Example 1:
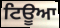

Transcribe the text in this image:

ਟਿਊਆ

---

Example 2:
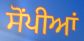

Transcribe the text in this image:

ਸੋਂਪੀਆਂ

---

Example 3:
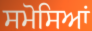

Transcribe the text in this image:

ਸਮੋਸਿਆਂ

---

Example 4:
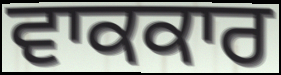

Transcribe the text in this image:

ਵਾਕਕਾਰ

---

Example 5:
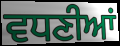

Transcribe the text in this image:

ਵਧਣੀਆਂ